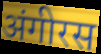
अंगीरस